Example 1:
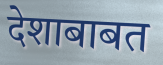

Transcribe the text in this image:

देशाबाबत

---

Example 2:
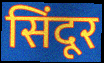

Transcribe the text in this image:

सिंदूर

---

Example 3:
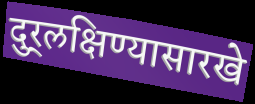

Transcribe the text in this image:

दुर्लक्षिण्यासारखे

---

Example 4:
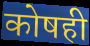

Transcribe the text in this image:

कोषही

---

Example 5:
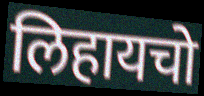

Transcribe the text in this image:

लिहायचो